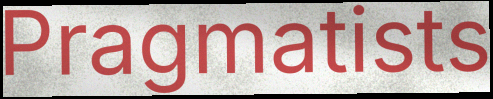
Pragmatists